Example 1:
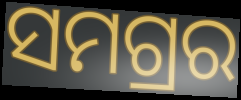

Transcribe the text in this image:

ସମଗ୍ରର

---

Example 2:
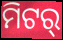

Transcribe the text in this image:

ମିଟର୍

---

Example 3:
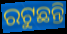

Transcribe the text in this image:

ରଟୁଛନ୍ତି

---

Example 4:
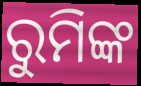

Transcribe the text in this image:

ରୁମିଙ୍କ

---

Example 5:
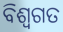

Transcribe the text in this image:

ବିଶ୍ଵଗତ